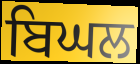
ਬਿਘਲ